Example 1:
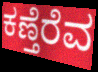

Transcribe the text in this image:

ಕಣ್ತೆರೆವ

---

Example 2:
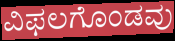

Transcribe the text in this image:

ವಿಫಲಗೊಂಡವು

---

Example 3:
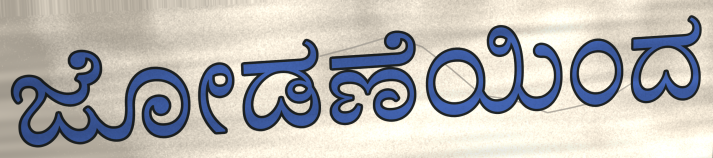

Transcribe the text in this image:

ಜೋಡಣೆಯಿಂದ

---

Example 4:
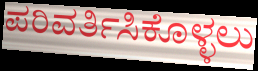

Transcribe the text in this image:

ಪರಿವರ್ತಿಸಿಕೊಳ್ಳಲು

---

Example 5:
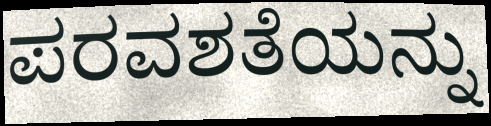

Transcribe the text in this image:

ಪರವಶತೆಯನ್ನು